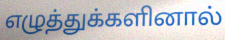
எழுத்துக்களினால்